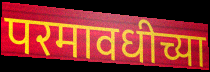
परमावधीच्या